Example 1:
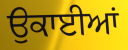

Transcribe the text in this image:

ਉਕਾਈਆਂ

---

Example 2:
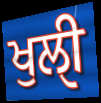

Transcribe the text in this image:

ਖੁਲੀੑ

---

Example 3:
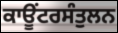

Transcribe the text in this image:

ਕਾਊਂਟਰਸੰਤੁਲਨ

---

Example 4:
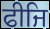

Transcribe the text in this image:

ਫੀਜਿ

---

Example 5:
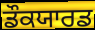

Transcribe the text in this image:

ਡੌਕਯਾਰਡ